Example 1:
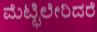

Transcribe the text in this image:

ಮೆಟ್ಟಿಲೇರಿದರೆ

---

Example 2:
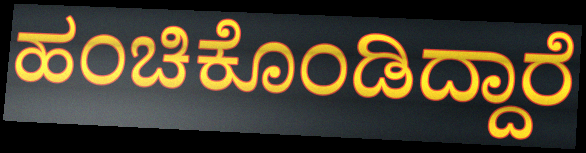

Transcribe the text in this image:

ಹಂಚಿಕೊಂಡಿದ್ದಾರೆ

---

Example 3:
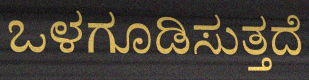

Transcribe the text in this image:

ಒಳಗೂಡಿಸುತ್ತದೆ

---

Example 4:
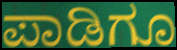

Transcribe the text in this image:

ಪಾಡಿಗೂ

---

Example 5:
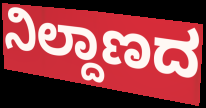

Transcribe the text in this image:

ನಿಲ್ದಾಣದ